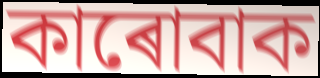
কাৰোবাক